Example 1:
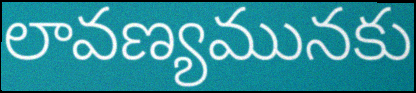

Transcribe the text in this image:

లావణ్యమునకు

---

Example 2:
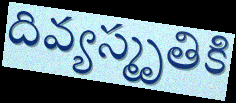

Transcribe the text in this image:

దివ్యస్మృతికి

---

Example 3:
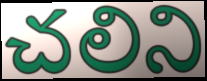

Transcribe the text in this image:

చలిని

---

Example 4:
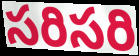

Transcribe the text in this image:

సరిసరి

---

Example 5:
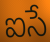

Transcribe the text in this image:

ఐసే